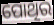
ପୋଥିର